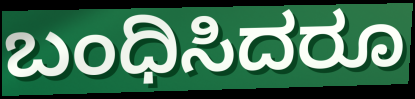
ಬಂಧಿಸಿದರೂ